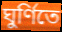
ঘুর্ণিতে